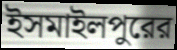
ইসমাইলপুরের